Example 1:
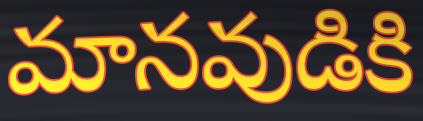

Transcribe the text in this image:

మానవుడికి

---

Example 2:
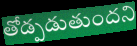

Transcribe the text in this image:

తోడ్పడుతుందని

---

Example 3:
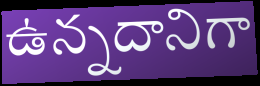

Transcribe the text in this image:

ఉన్నదానిగా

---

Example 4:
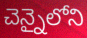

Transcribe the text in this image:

చెన్నైలోని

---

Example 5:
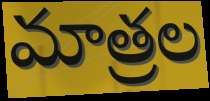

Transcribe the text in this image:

మాత్రల